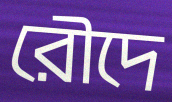
রৌদে